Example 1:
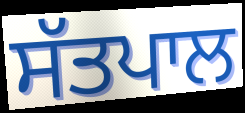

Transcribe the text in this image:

ਸੱਤਪਾਲ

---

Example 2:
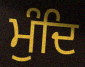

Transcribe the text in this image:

ਮੁੰਦਿ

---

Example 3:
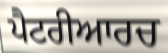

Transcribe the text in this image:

ਪੈਟਰੀਆਰਚ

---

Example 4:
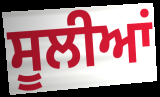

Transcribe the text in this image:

ਸੂਲੀਆਂ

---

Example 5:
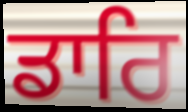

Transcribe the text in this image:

ਡਾਰਿ